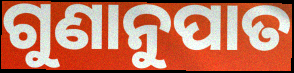
ଗୁଣାନୁପାତ